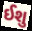
ઈશુ